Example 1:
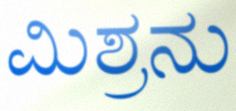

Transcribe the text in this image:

ಮಿಶ್ರನು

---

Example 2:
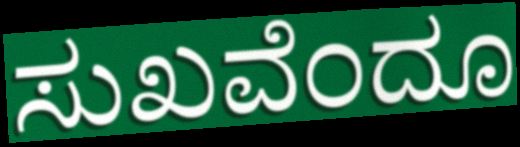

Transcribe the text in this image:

ಸುಖವೆಂದೂ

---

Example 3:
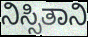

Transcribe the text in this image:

ನಿಸ್ಸಿತಾನಿ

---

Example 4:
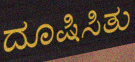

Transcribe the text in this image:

ದೂಷಿಸಿತು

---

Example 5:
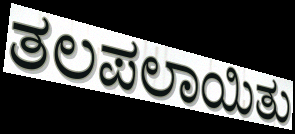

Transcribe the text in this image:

ತಲಪಲಾಯಿತು